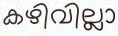
കഴിവില്ലാ